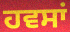
ਹਵਸਾਂ